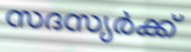
സദസ്യർക്ക്